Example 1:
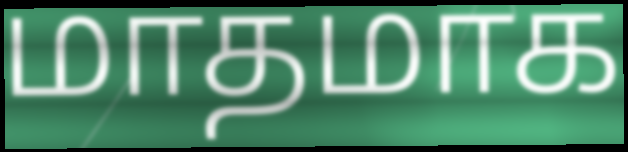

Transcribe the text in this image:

மாதமாக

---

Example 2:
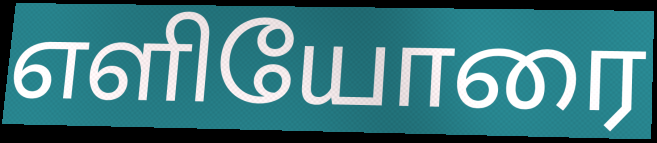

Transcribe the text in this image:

எளியோரை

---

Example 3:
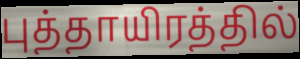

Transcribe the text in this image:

புத்தாயிரத்தில்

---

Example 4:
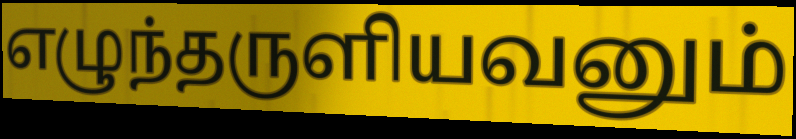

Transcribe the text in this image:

எழுந்தருளியவனும்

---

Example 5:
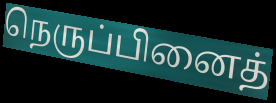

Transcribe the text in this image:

நெருப்பினைத்